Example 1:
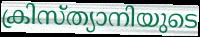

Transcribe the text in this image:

ക്രിസ്ത്യാനിയുടെ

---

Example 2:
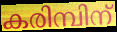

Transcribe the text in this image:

കരിമ്പിന്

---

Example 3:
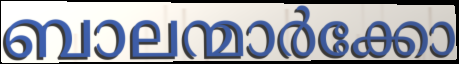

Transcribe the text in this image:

ബാലന്മാർക്കോ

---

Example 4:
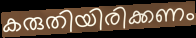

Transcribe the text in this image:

കരുതിയിരിക്കണം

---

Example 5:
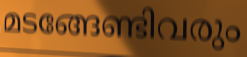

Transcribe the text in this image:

മടങ്ങേണ്ടിവരും